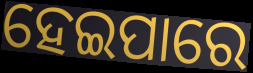
ହେଇପାରେ